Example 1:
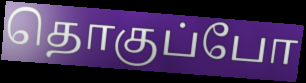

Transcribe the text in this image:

தொகுப்போ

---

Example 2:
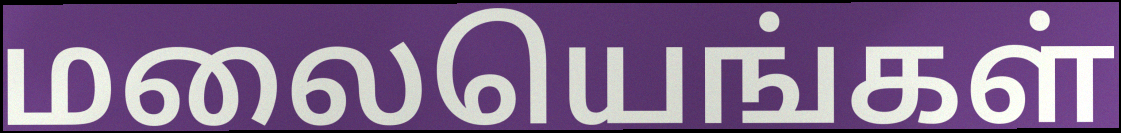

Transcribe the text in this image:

மலையெங்கள்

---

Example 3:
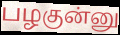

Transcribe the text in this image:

பழகுன்னு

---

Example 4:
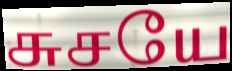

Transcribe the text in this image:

சுசயே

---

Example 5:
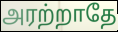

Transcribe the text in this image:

அரற்றாதே